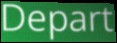
Depart